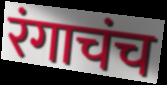
रंगाचंच